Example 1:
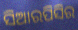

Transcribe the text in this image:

ସିଆରପିସିର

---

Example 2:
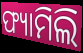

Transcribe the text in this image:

ଫ୍ୟାମିଲି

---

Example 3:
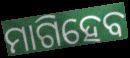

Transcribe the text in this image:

ମାଗିହେବ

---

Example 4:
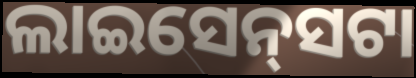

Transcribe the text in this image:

ଲାଇସେନ୍‍ସଟା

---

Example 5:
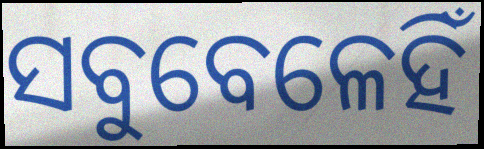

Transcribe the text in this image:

ସବୁବେଳେହିଁ